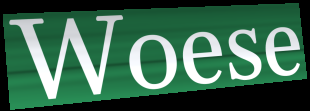
Woese